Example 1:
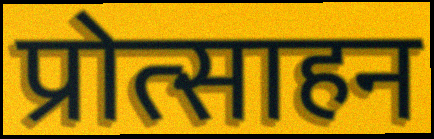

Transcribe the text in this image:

प्रोत्‍साहन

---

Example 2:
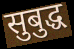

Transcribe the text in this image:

सुबुद्ध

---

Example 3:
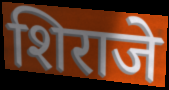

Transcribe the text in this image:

शिराजे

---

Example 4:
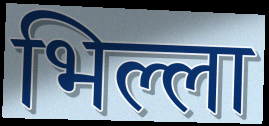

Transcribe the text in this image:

भिल्ला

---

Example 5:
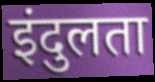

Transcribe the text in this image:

इंदुलता